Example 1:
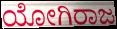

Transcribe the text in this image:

ಯೋಗಿರಾಜ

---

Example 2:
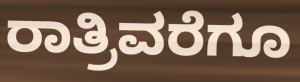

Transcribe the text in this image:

ರಾತ್ರಿವರೆಗೂ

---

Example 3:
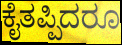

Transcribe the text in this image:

ಕೈತಪ್ಪಿದರೂ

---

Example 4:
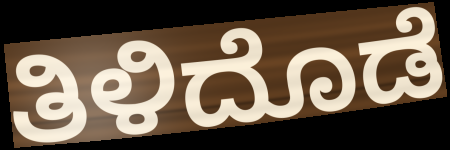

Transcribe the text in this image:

ತಿಳಿದೊಡೆ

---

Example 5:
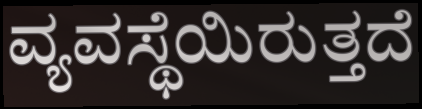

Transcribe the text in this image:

ವ್ಯವಸ್ಥೆಯಿರುತ್ತದೆ